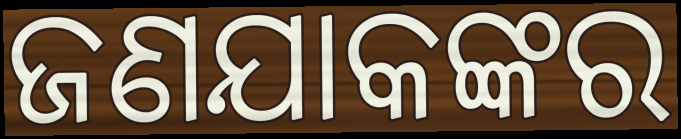
ଜଣଯାକଙ୍କର